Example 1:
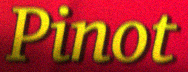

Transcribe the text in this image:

Pinot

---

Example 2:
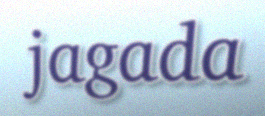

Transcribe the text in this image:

jagada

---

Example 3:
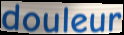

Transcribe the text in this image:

douleur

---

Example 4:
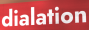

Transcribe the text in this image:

dialation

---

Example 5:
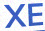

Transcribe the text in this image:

XE